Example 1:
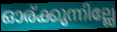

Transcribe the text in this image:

ഓര്ക്കുന്നില്ലേ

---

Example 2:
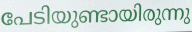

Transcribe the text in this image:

പേടിയുണ്ടായിരുന്നു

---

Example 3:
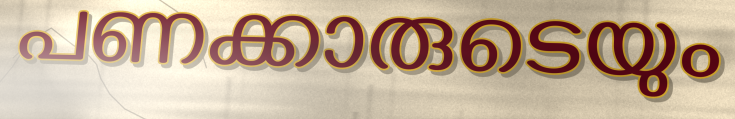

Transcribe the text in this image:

പണക്കാരുടെയും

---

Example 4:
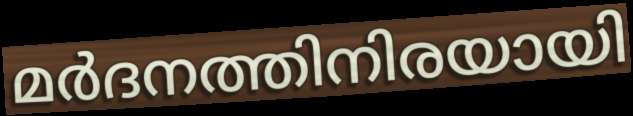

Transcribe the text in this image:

മർദനത്തിനിരയായി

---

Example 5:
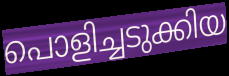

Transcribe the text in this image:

പൊളിച്ചടുക്കിയ